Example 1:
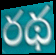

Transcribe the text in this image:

రథ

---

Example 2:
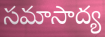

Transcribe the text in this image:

సమాసాద్య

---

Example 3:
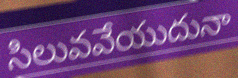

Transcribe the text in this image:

సిలువవేయుదునా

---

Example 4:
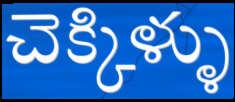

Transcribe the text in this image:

చెక్కిళ్ళు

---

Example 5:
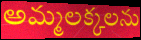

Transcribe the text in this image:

అమ్మలక్కలను